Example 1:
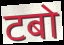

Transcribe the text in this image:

टबो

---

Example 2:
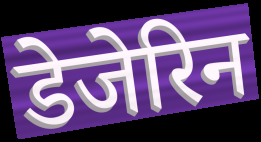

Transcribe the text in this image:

डेजेरिन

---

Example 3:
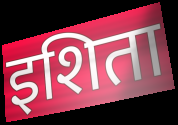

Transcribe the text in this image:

इशिता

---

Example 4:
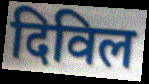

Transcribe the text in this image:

दिविल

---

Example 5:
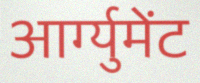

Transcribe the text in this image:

आर्ग्युमेंट